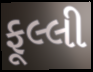
ફૂલ્લી